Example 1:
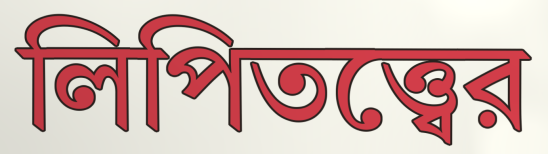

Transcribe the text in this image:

লিপিতত্ত্বের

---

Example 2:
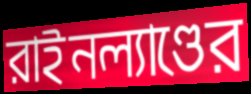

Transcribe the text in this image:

রাইনল্যাণ্ডের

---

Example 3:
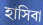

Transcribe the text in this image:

হাসিবা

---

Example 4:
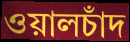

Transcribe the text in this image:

ওয়ালচাঁদ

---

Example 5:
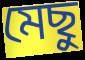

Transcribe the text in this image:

মেছু